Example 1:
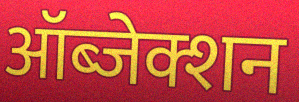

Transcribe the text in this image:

ऑब्‍जेक्‍शन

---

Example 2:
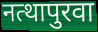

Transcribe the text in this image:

नत्थापुरवा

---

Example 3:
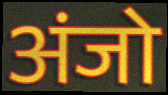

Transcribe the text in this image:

अंजो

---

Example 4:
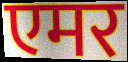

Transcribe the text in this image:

एमर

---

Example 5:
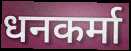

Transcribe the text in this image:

धनकर्मा